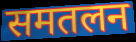
समतलन